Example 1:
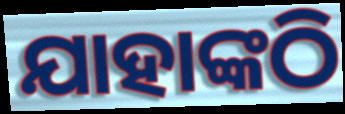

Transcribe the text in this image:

ଯାହାଙ୍କଠି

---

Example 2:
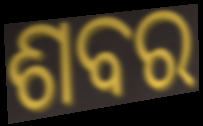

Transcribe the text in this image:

ଶବର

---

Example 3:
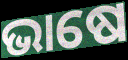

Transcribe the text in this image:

ଭାଷେ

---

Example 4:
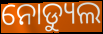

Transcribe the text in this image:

ନୋଡ୍ୟୁଲ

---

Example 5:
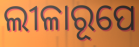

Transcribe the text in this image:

ଲୀଳାରୂପେ